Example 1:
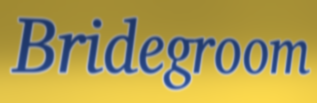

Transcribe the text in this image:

Bridegroom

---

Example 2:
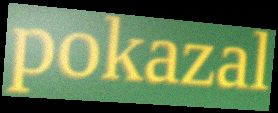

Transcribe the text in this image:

pokazal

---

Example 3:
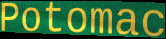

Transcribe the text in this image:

Potomac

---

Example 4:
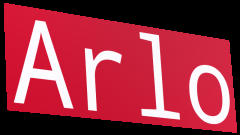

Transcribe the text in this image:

Arlo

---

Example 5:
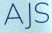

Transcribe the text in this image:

AJS